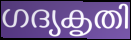
ഗദ്യകൃതി